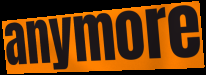
anymore